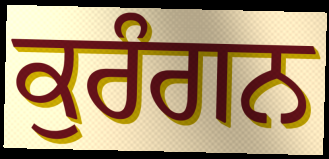
ਕੁਰੰਗਨ